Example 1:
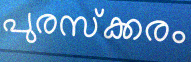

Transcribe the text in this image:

പുരസ്ക്കരം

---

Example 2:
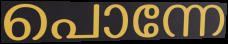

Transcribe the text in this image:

പൊന്നേ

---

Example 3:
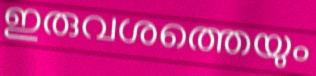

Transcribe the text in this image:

ഇരുവശത്തെയും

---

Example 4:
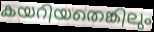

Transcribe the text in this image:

കയറിയതെങ്കിലും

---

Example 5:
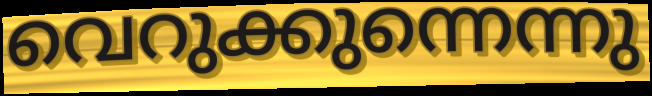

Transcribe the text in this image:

വെറുക്കുന്നെന്നു